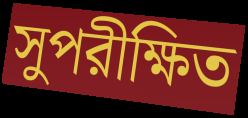
সুপরীক্ষিত